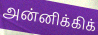
அன்னிக்கிக்